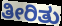
ತೀರಿತು